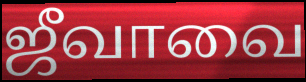
ஜீவாவை